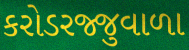
કરોડરજ્જુવાળા